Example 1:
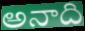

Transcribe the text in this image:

అనాది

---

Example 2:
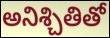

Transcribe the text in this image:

అనిశ్చితితో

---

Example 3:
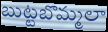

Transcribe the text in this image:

బుట్టబొమ్మలా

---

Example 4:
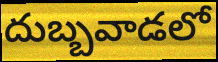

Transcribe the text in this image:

దుబ్బవాడలో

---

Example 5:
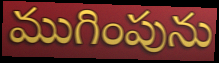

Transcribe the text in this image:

ముగింపును